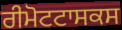
ਰੀਮੋਟਟਾਸਕਸ